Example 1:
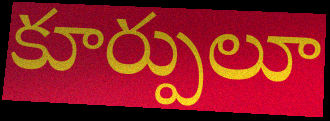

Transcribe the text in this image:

కూర్పులూ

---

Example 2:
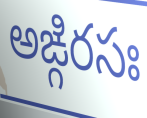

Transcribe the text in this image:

అఙ్గిరసః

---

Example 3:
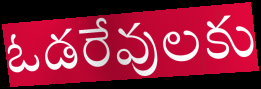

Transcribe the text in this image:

ఓడరేవులకు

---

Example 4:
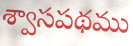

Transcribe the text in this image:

శ్వాసపథము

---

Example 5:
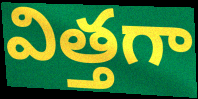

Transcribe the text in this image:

విత్తగా